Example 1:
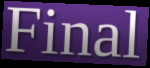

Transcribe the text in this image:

Final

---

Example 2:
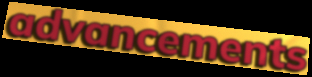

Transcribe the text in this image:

advancements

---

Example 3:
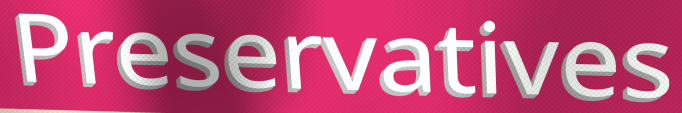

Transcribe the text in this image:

Preservatives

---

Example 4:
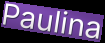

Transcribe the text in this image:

Paulina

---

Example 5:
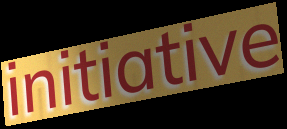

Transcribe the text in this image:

initiative